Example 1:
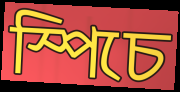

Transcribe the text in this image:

স্পিচে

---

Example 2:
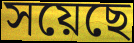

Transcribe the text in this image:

সয়েছে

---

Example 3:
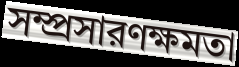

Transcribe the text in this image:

সম্প্রসারণক্ষমতা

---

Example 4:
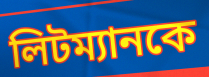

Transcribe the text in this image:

লিটম্যানকে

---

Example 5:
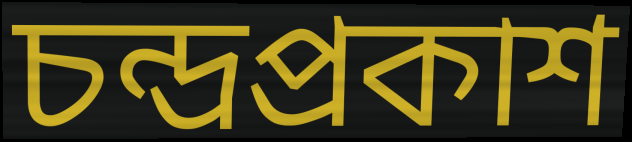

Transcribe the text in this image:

চন্দ্রপ্রকাশ